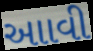
આાવી